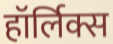
हॉर्लिक्स